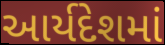
આર્યદેશમાં